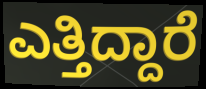
ಎತ್ತಿದ್ದಾರೆ